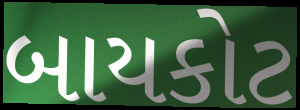
બાયકોટ